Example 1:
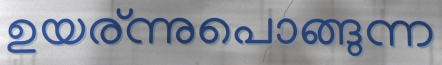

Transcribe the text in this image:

ഉയര്ന്നുപൊങ്ങുന്ന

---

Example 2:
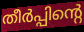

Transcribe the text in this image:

തീർപ്പിന്റെ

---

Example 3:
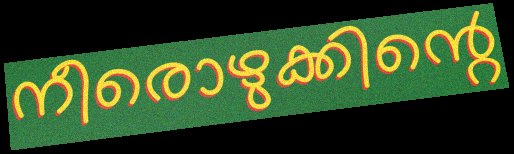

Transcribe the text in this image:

നീരൊഴുക്കിന്റെ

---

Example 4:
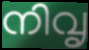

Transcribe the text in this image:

നിവൃ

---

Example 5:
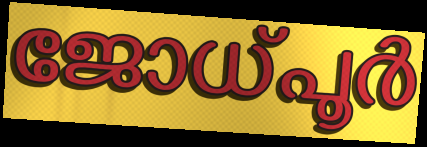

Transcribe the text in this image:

ജോധ്പൂർ